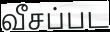
வீசப்பட